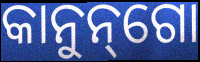
କାନୁନ୍‌ଗୋ